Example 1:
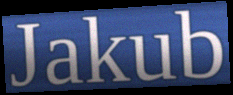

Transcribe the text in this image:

Jakub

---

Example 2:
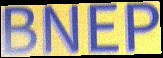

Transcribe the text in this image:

BNEP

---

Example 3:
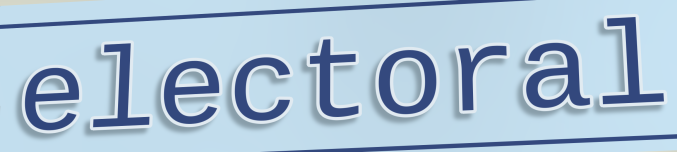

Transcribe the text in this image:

electoral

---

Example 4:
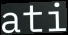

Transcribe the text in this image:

ati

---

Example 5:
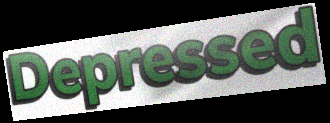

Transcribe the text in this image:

Depressed